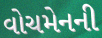
વોચમેનની